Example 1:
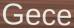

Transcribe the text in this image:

Gece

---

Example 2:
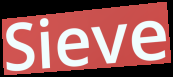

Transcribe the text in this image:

Sieve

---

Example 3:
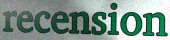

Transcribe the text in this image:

recension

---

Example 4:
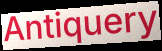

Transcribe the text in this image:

Antiquery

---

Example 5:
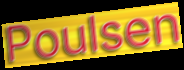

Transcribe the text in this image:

Poulsen